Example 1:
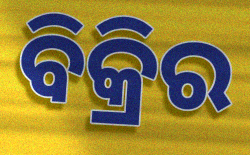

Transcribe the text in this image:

ବିକ୍ରିର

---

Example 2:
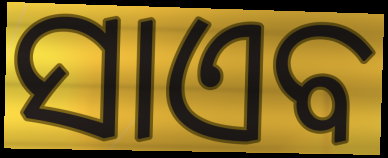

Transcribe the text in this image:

ସାଏବ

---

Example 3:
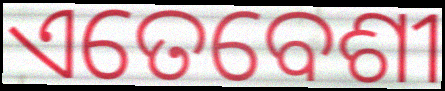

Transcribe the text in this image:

ଏତେବେଶୀ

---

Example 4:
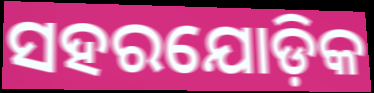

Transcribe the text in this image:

ସହରଯୋଡ଼ିକ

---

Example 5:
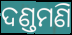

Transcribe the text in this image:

ଦଣ୍ଡମଣି